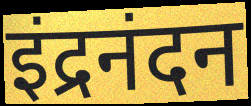
इंद्रनंदन